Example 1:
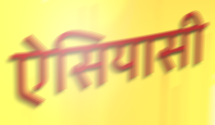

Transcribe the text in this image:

ऐसियासी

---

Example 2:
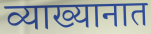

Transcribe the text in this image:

व्याख्यानात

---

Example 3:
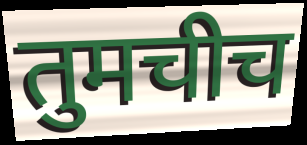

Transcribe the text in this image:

तुमचीच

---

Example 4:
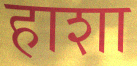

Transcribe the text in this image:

हाशा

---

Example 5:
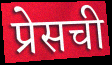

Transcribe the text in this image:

प्रेसची